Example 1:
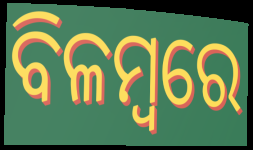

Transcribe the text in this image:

ବିଳମ୍ୱରେ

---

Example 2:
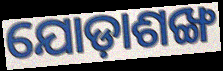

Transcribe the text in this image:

ଯୋଡ଼ାଶଙ୍ଖ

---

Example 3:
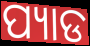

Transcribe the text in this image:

ପ୍ୟାଡ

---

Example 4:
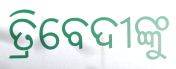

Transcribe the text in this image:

ତ୍ରିବେଦୀଙ୍କୁ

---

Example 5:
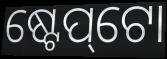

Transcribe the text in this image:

ଷ୍ଟେପ୍‌ଟୋ